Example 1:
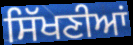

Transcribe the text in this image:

ਸਿੱਖਣੀਆਂ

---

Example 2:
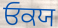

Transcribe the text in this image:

ਓਕਯ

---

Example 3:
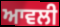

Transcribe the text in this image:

ਆਵਲੀ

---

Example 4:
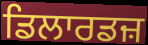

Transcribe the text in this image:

ਡਿਲਾਰਡਜ਼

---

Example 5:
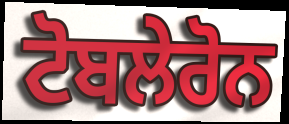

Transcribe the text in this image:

ਟੋਬਲੇਰੋਨ